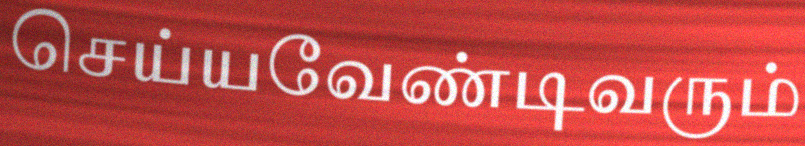
செய்யவேண்டிவரும்